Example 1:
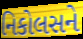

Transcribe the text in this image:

નિકોલસને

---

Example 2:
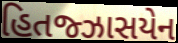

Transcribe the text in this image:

હિતજ્ઝાસયેન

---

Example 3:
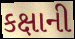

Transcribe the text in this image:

કક્ષાની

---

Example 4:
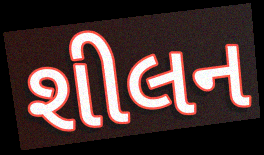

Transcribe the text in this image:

શીલન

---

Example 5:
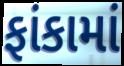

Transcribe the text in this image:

ફાંકામાં